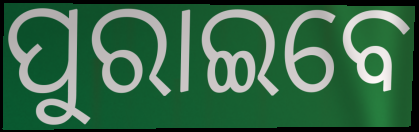
ପୁରାଇବେ